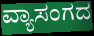
ವ್ಯಾಸಂಗದ